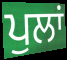
ਪੁਲਾਂ